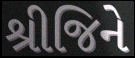
શ્રીજિને